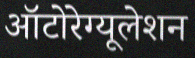
ऑटोरेग्यूलेशन